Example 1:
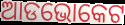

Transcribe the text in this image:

ଆଡଭୋକେଟ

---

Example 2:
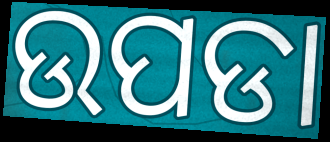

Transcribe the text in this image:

ଉପଡା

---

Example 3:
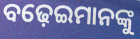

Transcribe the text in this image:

ବଢ଼େଇମାନଙ୍କୁ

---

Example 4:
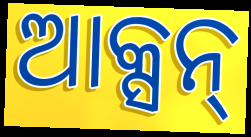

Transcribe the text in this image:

ଆକ୍ସନ୍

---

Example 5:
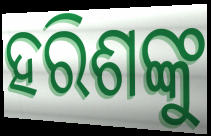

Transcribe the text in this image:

ହରିଶଙ୍କୁ